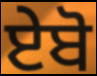
ਏਬੋ